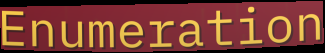
Enumeration